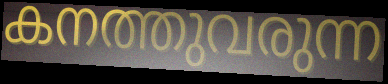
കനത്തുവരുന്ന